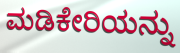
ಮಡಿಕೇರಿಯನ್ನು